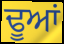
ਢੂਆਂ